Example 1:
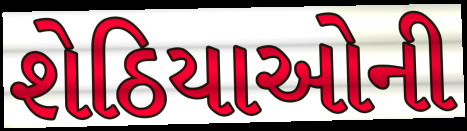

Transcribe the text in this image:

શેઠિયાઓની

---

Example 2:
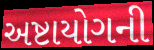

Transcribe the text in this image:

અષ્ટાયોગની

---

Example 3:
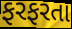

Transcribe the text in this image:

ફરફરતા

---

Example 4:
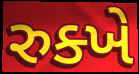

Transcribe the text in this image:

રુક્ખે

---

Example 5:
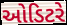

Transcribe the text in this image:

ઓડિટરે